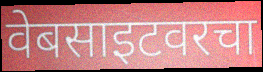
वेबसाइटवरचा